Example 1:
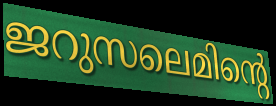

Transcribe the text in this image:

ജറുസലെമിന്റെ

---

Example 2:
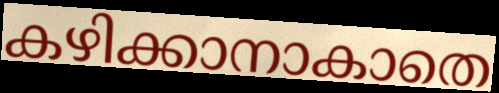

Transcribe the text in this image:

കഴിക്കാനാകാതെ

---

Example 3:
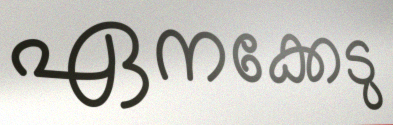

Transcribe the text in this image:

ഏനക്കേടു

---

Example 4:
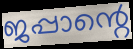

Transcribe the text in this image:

ജപ്പാന്റെ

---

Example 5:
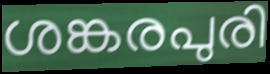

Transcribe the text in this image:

ശങ്കരപുരി